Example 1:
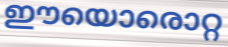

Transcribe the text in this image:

ഈയൊരൊറ്റ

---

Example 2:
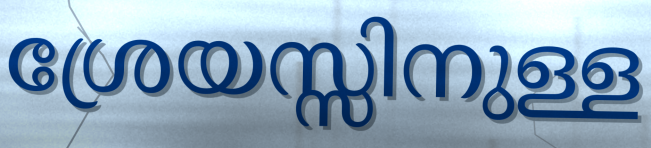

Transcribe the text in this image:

ശ്രേയസ്സിനുള്ള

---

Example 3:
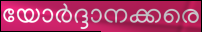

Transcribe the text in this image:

യോർദ്ദാനക്കരെ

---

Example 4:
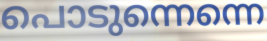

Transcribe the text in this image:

പൊടുന്നെന്നെ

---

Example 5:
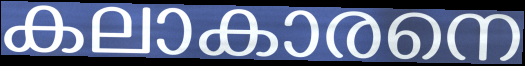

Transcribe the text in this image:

കലാകാരനെ